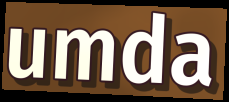
umda